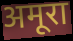
अमूरा